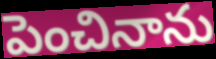
పెంచినాను